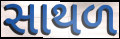
સાથળ